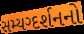
સમ્યગ્દર્શનનો